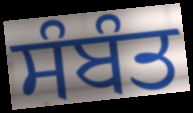
ਸੰਬੰਤ